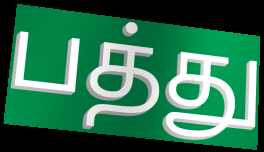
பத்து